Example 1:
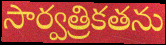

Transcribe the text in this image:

సార్వత్రికతను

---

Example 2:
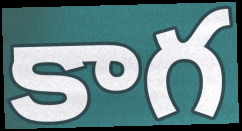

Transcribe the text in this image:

కాగ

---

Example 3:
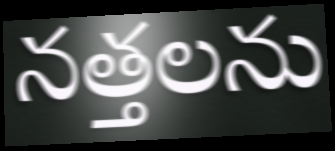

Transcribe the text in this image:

నత్తలను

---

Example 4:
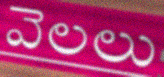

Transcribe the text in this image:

వెలలు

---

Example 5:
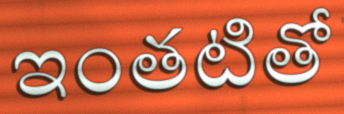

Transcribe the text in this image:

ఇంతటితో